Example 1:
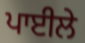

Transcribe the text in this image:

ਪਾਈਲੇ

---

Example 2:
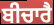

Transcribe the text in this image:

ਬੀਚਾਰੈ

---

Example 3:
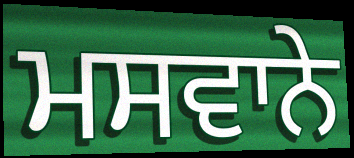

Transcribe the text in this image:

ਮਸਵਾਨੇ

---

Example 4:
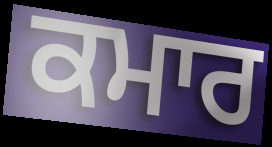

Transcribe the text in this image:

ਕਮਾਰ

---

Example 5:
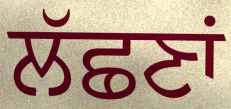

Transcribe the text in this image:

ਲੱਛਣਾਂ